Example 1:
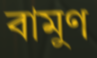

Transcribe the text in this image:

বামুণ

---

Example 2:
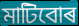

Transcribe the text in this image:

মাটিবোৰ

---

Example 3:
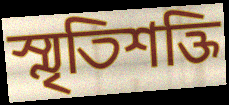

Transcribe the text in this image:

স্মৃতিশক্তি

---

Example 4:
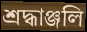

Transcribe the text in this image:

শ্ৰদ্ধাঞ্জলি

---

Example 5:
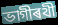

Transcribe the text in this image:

ভাগীৰথী